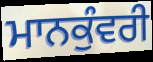
ਮਾਨਕੁੰਵਰੀ